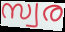
സ്വര